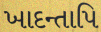
ખાદન્તાપિ